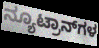
ನ್ಯೂಟ್ರಾನ್‌ಗಳ